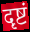
दृष्टं